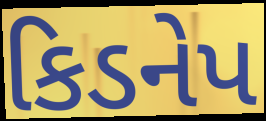
કિડનેપ